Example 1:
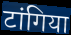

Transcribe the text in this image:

टांगिया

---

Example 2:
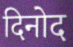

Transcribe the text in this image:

दिनोद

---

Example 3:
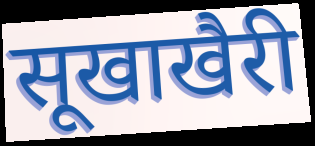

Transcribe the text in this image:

सूखाखैरी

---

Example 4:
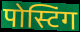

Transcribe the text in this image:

पोस्टिंग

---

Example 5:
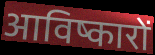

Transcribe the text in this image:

आविष्कारों